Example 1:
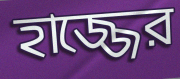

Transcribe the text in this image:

হাজ্জের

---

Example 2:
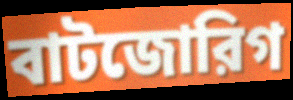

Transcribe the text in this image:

বাটজোরিগ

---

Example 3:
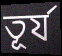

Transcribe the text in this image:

তূর্য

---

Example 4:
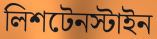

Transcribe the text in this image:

লিশটেনস্টাইন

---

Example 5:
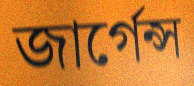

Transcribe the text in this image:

জার্গেন্স